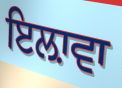
ਇਲ਼ਾਵਾ